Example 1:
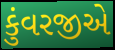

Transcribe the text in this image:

કુંવરજીએ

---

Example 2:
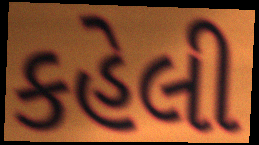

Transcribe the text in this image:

કહેલી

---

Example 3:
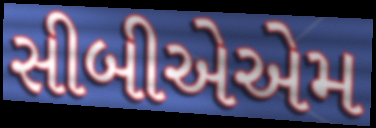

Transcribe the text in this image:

સીબીએએમ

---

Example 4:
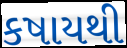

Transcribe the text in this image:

કષાયથી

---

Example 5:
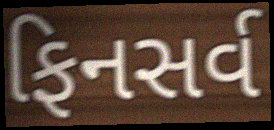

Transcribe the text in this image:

ફિનસર્વ